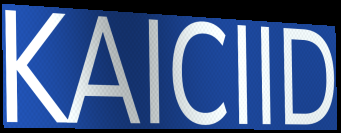
KAICIID